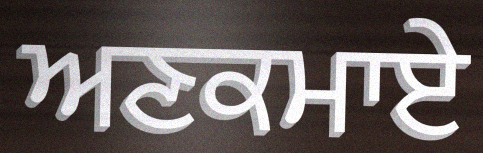
ਅਣਕਮਾਏ